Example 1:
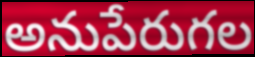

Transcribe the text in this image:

అనుపేరుగల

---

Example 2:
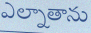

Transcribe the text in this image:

ఎల్నాతాను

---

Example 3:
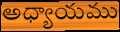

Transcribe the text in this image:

అధ్యాయము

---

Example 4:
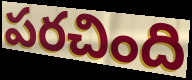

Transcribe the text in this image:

పరచింది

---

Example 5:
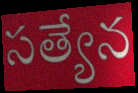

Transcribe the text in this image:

సత్యేన